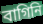
বাগিনি